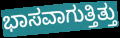
ಭಾಸವಾಗುತ್ತಿತ್ತು